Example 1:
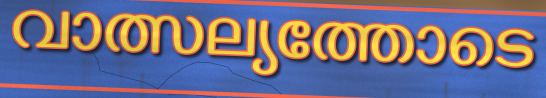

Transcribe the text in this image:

വാത്സല്യത്തോടെ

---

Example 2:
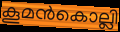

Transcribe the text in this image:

കൂമൻകൊല്ലി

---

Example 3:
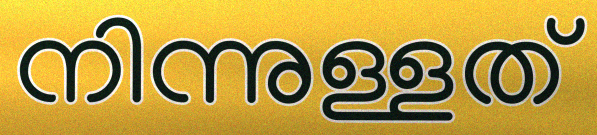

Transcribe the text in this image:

നിന്നുള്ളത്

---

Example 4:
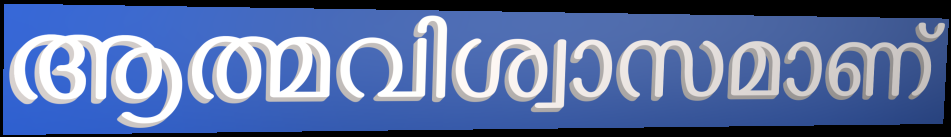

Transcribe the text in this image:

ആത്മവിശ്വാസമാണ്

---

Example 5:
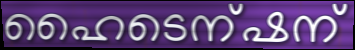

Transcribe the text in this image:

ഹൈടെന്ഷന്